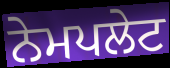
ਨੇਮਪਲੇਟ